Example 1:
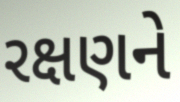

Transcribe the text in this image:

રક્ષણને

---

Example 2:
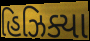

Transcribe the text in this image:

હિઝિક્યા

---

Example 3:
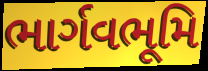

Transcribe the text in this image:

ભાર્ગવભૂમિ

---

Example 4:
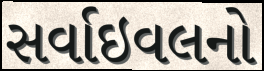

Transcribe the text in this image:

સર્વાઇવલનો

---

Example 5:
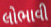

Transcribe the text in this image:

લોભાવી